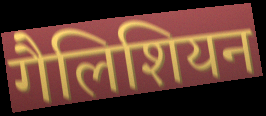
गैलिशियन